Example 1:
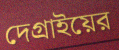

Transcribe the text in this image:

দেগ্রাইয়ের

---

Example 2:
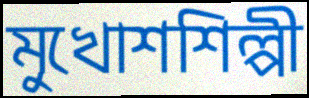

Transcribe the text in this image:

মুখোশশিল্পী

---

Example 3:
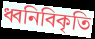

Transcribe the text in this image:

ধ্বনিবিকৃতি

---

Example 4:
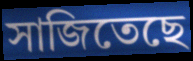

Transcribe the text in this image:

সাজিতেছে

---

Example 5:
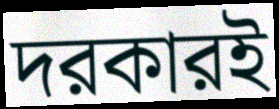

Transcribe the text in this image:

দরকারই